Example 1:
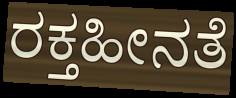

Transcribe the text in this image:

ರಕ್ತಹೀನತೆ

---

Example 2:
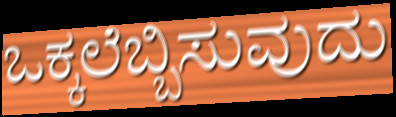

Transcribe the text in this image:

ಒಕ್ಕಲೆಬ್ಬಿಸುವುದು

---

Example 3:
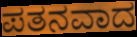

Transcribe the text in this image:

ಪತನವಾದ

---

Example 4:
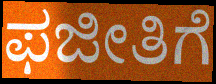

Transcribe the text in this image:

ಫಜೀತಿಗೆ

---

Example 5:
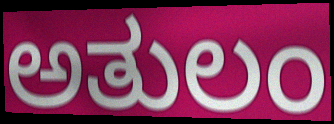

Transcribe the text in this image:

ಅತುಲಂ